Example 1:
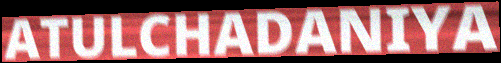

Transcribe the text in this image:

ATULCHADANIYA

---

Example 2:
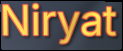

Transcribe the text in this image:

Niryat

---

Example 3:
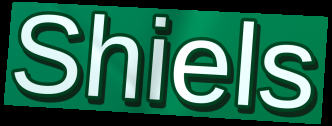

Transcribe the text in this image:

Shiels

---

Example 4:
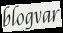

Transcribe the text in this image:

blogvar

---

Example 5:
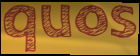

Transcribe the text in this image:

quos